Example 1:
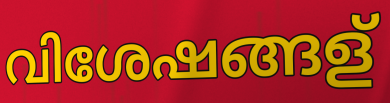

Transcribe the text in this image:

വിശേഷങ്ങള്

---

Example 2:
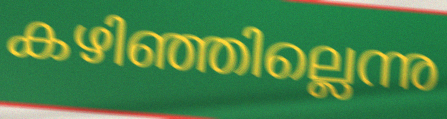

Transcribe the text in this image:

കഴിഞ്ഞില്ലെന്നു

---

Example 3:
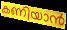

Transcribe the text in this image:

കണിയാൻ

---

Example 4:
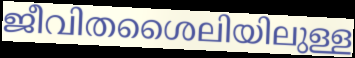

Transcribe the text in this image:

ജീവിതശൈലിയിലുള്ള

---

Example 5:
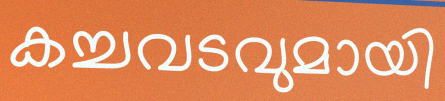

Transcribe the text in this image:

കച്ചവടവുമായി